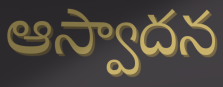
ఆస్వాదన